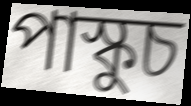
পাস্কুচ